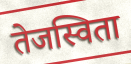
तेजस्विता